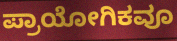
ಪ್ರಾಯೋಗಿಕವೂ